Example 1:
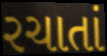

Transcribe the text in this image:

રચાતાં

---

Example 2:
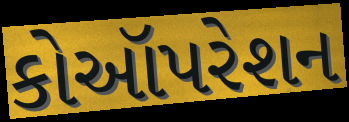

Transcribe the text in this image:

કોઑપરેશન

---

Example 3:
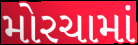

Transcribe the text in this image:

મોરચામાં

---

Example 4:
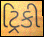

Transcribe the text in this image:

ટ્રિકી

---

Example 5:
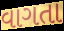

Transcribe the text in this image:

વાગતા